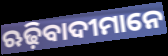
ଋଢ଼ିବାଦୀମାନେ